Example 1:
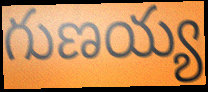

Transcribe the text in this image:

గుణయ్య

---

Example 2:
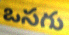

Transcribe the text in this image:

ఒసగు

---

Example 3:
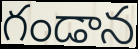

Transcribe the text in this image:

గండాన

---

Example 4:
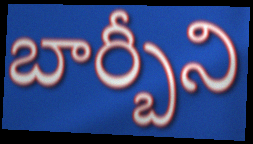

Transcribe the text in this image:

బార్బీని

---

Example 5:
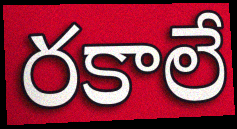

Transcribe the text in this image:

రకాలే